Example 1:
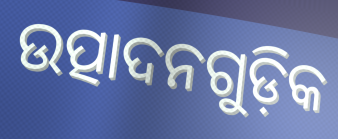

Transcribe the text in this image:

ଉତ୍ପାଦନଗୁଡ଼ିକ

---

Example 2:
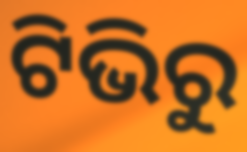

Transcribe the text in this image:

ଟିଭିରୁ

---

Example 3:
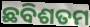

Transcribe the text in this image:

ଛବିଶତମ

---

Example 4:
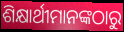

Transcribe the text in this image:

ଶିକ୍ଷାର୍ଥୀମାନଙ୍କଠାରୁ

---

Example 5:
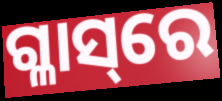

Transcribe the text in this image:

ଗ୍ଳାସ୍‌ରେ